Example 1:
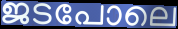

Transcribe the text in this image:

ജടപോലെ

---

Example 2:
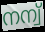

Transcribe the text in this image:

നന്വ്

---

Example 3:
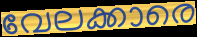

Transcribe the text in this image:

വേലക്കാരെ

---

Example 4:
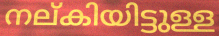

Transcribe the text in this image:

നല്കിയിട്ടുള്ള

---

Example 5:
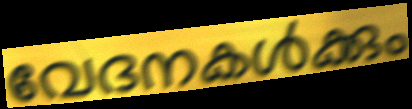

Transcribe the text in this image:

വേദനകൾക്കും